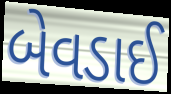
બેવડાઈ